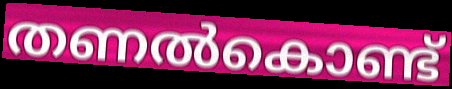
തണൽകൊണ്ട്